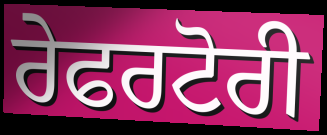
ਰੇਫਰਟੋਰੀ